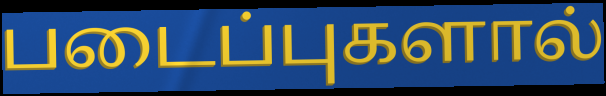
படைப்புகளால்